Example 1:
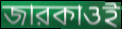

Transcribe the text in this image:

জারকাওই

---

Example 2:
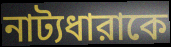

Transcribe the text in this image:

নাট্যধারাকে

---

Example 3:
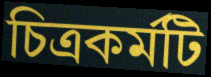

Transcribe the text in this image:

চিত্রকর্মটি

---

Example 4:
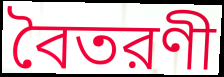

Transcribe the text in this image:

বৈতরণী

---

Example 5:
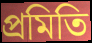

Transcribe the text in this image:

প্রমিতি